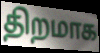
திறமாக